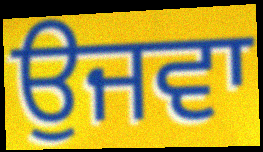
ਉਜਵਾ